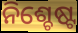
ନିଶ୍ଚେଷ୍ଟ